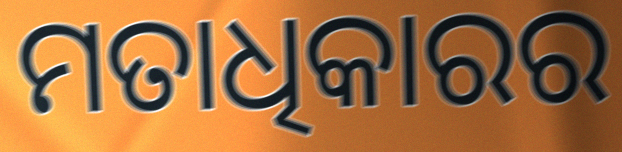
ମତାଧିକାରର